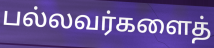
பல்லவர்களைத்